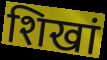
शिखां